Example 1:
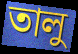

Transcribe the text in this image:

তালু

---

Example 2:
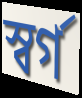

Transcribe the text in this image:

স্বৰ্গ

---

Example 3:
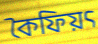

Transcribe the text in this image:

কৈফিয়ৎ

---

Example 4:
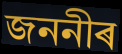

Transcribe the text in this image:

জননীৰ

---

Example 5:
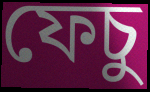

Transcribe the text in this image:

ফেচু